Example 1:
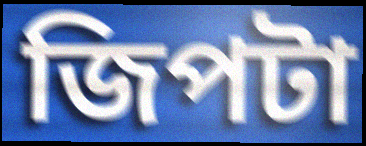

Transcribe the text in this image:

জিপটা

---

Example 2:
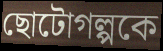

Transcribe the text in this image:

ছোটোগল্পকে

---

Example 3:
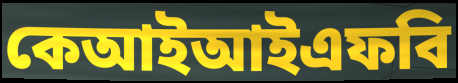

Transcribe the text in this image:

কেআইআইএফবি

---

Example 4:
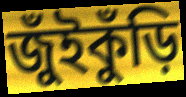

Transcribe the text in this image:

জুঁইকুঁড়ি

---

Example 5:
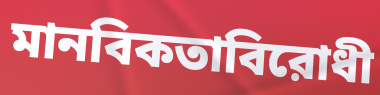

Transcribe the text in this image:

মানবিকতাবিরোধী